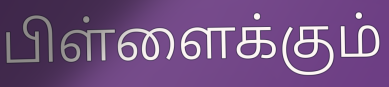
பிள்ளைக்கும்